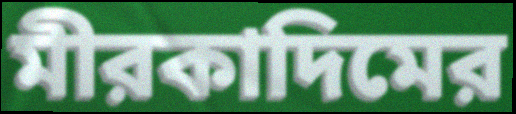
মীরকাদিমের